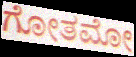
ಗೋತಮೋ